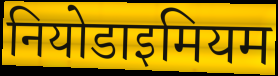
नियोडाइमियम